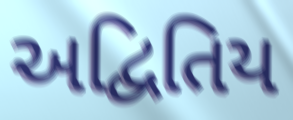
અદ્વિતિય